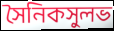
সৈনিকসুলভ